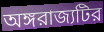
অঙ্গরাজ্যটির